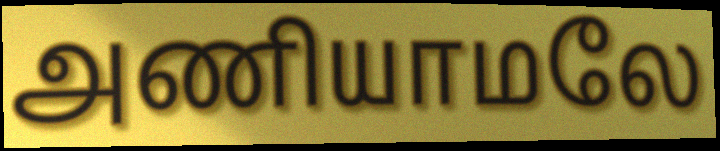
அணியாமலே